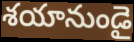
శయానుండై